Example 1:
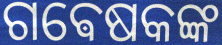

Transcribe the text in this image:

ଗଵେଷକଙ୍କ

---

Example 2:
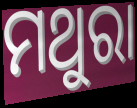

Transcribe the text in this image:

ମଥୁରା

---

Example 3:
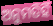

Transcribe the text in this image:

ଅନୁମତିହିଁ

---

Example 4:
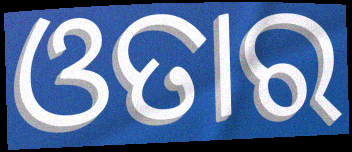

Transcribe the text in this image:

ଓତାର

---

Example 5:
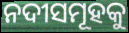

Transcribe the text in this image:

ନଦୀସମୂହକୁ